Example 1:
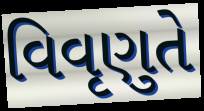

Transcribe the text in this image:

વિવૃણુતે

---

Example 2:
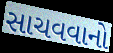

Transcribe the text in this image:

સાચવવાનો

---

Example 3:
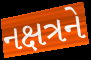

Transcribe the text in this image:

નક્ષત્રને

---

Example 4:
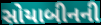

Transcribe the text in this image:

સોયાબીનની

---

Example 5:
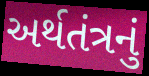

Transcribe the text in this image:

અર્થતંત્રનું